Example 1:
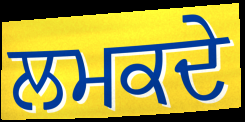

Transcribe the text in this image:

ਲਮਕਦੇ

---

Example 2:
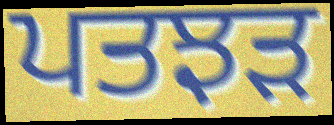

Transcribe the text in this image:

ਪਤਝਡ਼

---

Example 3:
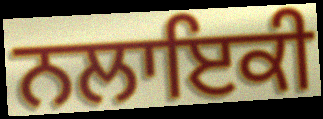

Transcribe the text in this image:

ਨਲਾਇਕੀ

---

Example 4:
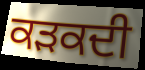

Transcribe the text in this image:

ਕੜਕਦੀ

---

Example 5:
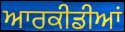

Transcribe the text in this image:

ਆਰਕੀਡੀਆਂ